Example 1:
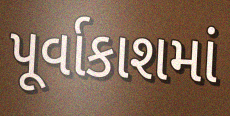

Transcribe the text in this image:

પૂર્વાકાશમાં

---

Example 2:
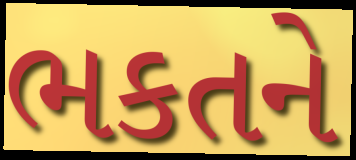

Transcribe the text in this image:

ભકતને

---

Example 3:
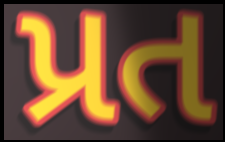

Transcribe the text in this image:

પ્રત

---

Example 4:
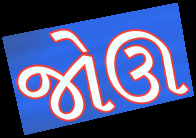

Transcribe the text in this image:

જોઊ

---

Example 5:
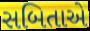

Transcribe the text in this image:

સબિતાએ